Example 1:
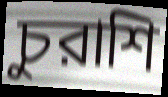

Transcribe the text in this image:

চুরাশি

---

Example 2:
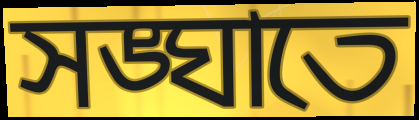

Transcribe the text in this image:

সঙ্ঘাতে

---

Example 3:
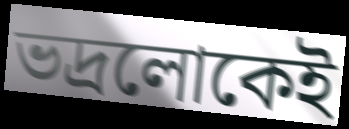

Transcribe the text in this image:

ভদ্রলোকেই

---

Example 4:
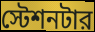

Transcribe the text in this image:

স্টেশনটার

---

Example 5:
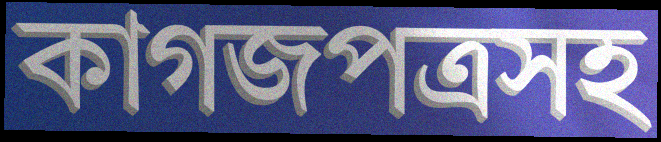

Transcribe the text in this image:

কাগজপত্রসহ